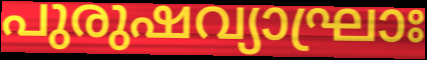
പുരുഷവ്യാഘ്രാഃ